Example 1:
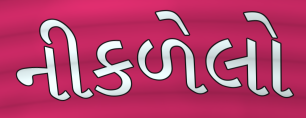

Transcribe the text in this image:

નીકળેલો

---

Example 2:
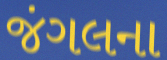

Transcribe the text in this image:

જંગલના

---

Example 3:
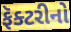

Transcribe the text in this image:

ફૅક્ટરીનો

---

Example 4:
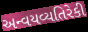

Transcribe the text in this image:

અન્વયવ્યતિરેકી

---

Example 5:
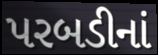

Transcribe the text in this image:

પરબડીનાં